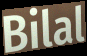
Bilal